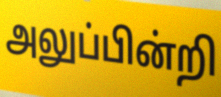
அலுப்பின்றி